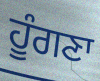
ਹੂੰਗਣਾ